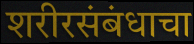
शरीरसंबंधाचा